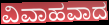
ವಿವಾಹವಾದ